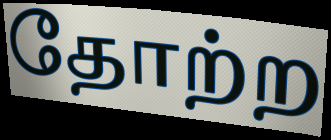
தோற்ற